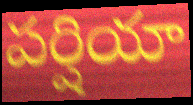
పర్షియా